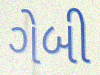
ગેબી